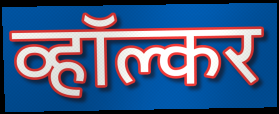
व्हॉल्कर